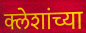
क्लेशांच्या